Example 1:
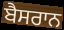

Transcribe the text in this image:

ਬੈਸਰਾਨ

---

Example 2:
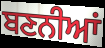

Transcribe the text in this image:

ਬਣਨੀਆਂ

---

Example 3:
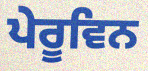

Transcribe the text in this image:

ਪੇਰੂਵਿਨ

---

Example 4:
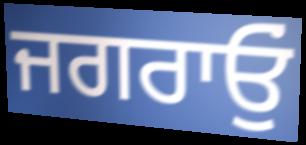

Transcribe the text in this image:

ਜਗਰਾਓੁਂ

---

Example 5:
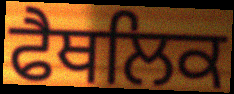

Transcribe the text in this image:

ਫੈਥਲਿਕ